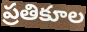
ప్రతికూల